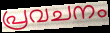
പ്രവചനം